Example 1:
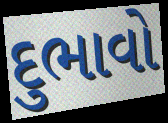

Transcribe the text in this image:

દુભાવો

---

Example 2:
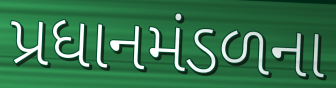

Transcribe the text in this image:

પ્રધાનમંડળના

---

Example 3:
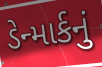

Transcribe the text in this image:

ડેન્માર્કનું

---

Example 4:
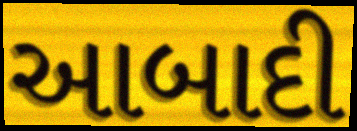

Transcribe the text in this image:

આબાદી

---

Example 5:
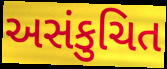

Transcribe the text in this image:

અસંકુચિત